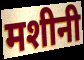
मशीनी